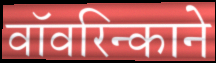
वॉवरिन्काने